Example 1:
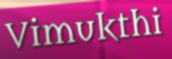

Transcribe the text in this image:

Vimukthi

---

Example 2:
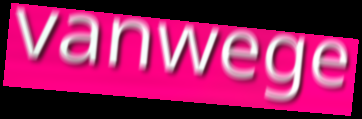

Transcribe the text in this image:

vanwege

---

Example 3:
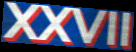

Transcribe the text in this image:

XXVII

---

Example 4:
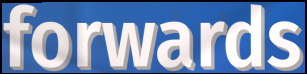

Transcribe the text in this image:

forwards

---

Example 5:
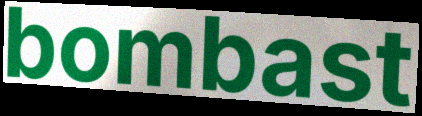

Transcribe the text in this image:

bombast